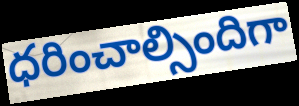
ధరించాల్సిందిగా